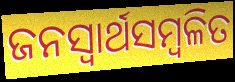
ଜନସ୍ବାର୍ଥସମ୍ବଳିତ